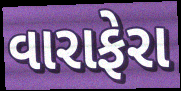
વારાફેરા